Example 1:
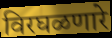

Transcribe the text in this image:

विरघळणारे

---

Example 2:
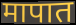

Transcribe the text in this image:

मापात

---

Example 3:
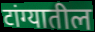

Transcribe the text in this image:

टांग्यातील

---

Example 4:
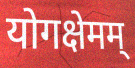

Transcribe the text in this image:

योगक्षेमम्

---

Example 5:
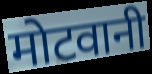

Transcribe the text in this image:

मोटवानी